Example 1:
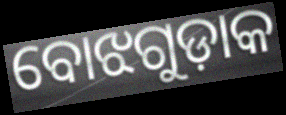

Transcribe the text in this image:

ବୋଝଗୁଡ଼ାକ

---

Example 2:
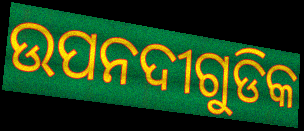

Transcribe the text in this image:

ଉପନଦୀଗୁଡିକ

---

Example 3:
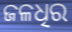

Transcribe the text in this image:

ଜଳଧିର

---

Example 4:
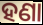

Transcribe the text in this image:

ହଣା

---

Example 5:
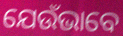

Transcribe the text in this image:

ଯେଉଁଭାବେ